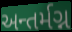
અન્તર્મગ્ન